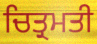
ਚਿਤ੍ਰਮਤੀ